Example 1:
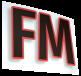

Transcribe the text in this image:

FM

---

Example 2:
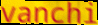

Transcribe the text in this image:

vanchi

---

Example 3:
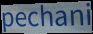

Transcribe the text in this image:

pechani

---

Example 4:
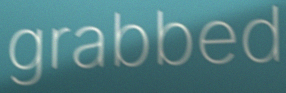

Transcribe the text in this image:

grabbed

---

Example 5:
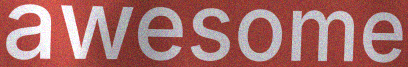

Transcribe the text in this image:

awesome